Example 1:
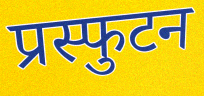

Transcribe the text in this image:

प्रस्फुटन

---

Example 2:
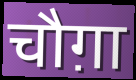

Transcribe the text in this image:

चौग़ा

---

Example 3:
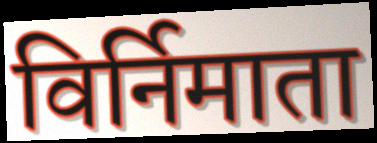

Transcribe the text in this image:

विर्निमाता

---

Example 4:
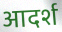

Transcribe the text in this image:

आदर्श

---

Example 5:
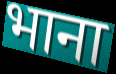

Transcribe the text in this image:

भाना